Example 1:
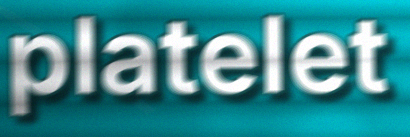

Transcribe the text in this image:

platelet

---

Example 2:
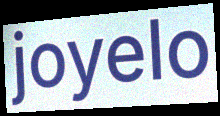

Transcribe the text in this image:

joyelo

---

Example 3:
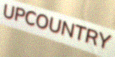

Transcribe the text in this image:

UPCOUNTRY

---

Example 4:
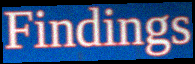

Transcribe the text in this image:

Findings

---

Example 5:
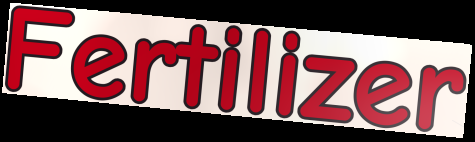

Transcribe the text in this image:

Fertilizer